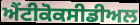
ਐਂਟੀਕੋਕਸੀਡੀਅਲ